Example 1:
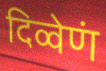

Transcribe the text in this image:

दिव्वेणं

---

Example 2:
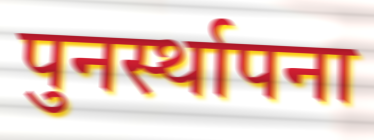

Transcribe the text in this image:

पुनर्स्थापना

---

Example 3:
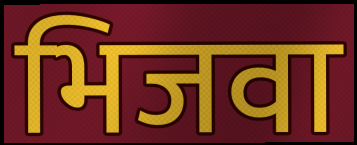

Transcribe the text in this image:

भिजवा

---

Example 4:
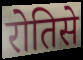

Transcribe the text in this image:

रोतिसे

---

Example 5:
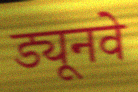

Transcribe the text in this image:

ड्यूनवे